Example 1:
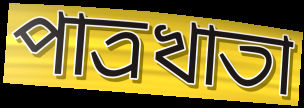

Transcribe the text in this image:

পাত্রখাতা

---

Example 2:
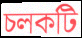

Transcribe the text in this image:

চলকটি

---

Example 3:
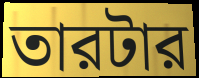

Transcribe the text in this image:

তারটার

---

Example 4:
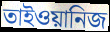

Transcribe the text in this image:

তাইওয়ানিজ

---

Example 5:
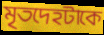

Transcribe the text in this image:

মৃতদেহটাকে